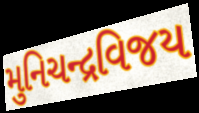
મુનિચન્દ્રવિજય